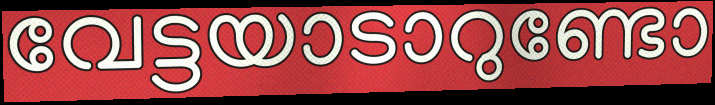
വേട്ടയാടാറുണ്ടോ